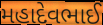
મહાદેવભાઈ